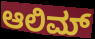
ಆಲಿಮ್